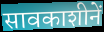
सावकाशीनें